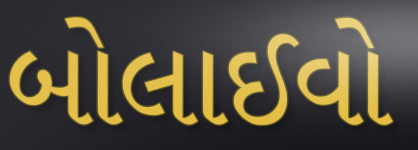
બોલાઈવો